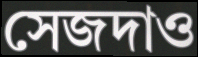
সেজদাও